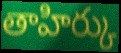
తాహిర్కు